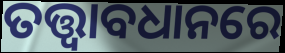
ତତ୍ତ୍ଵାବଧାନରେ